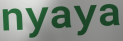
nyaya